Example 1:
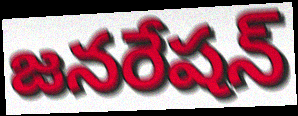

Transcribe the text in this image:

జనరేషన్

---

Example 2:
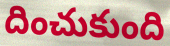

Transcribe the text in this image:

దించుకుంది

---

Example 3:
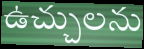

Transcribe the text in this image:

ఉచ్చులను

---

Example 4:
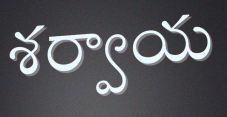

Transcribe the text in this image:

శర్వాయ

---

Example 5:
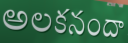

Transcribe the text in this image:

అలకనందా